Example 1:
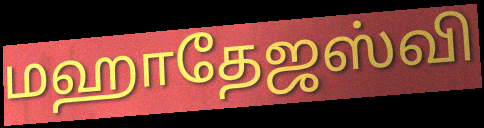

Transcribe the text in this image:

மஹாதேஜஸ்வி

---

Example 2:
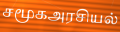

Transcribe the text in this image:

சமூகஅரசியல்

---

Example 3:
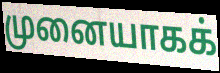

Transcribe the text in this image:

முனையாகக்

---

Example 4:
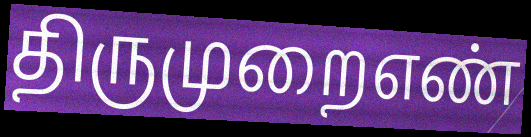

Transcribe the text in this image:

திருமுறைஎண்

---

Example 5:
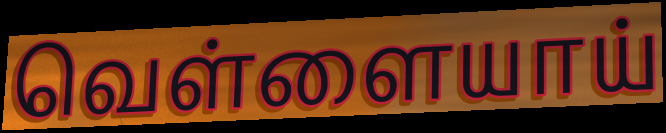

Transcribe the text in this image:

வெள்ளையாய்